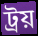
ট্রয়